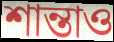
শান্তাও